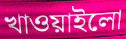
খাওয়াইলো